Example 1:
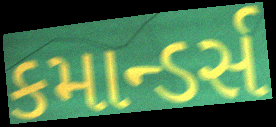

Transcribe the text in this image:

કમાન્ડર્સ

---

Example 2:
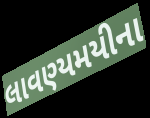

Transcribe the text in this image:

લાવણ્યમયીના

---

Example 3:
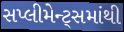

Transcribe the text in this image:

સપ્લીમેન્ટ્સમાંથી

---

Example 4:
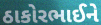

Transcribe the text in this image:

ઠાકોરભાઈને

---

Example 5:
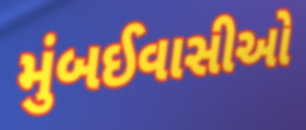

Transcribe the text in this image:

મુંબઈવાસીઓ